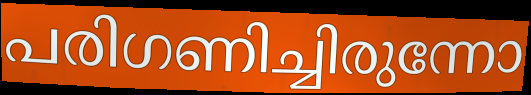
പരിഗണിച്ചിരുന്നോ